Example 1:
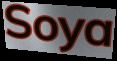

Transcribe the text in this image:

Soya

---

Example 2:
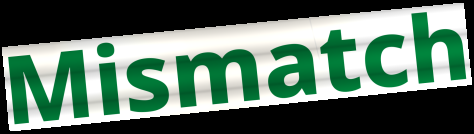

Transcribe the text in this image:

Mismatch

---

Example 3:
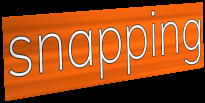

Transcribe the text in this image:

snapping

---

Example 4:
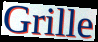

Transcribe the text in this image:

Grille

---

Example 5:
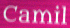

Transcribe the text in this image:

Camil